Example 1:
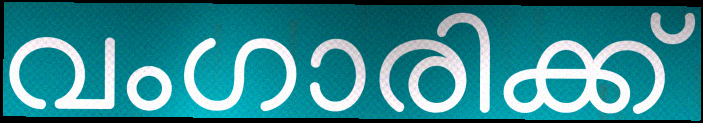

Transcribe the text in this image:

വംഗാരിക്ക്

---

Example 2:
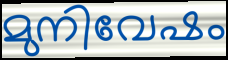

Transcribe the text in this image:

മുനിവേഷം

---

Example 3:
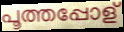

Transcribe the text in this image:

പൂത്തപ്പോള്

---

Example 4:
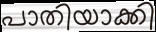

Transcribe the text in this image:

പാതിയാക്കി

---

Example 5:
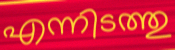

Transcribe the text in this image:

എന്നിടത്തു